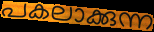
പകലാക്കുന്ന